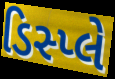
ડિસ્પ્લે